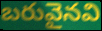
బరువైనవి